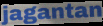
jagantan